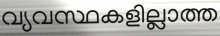
വ്യവസ്ഥകളില്ലാത്ത